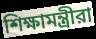
শিক্ষামন্ত্রীরা